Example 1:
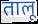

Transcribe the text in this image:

तालू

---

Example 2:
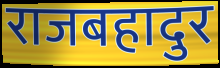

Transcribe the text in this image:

राजबहादुर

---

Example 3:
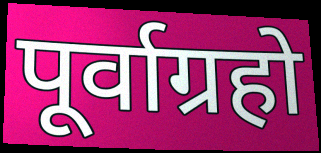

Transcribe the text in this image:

पूर्वाग्रहो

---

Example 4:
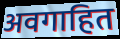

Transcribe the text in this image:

अवगाहित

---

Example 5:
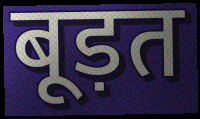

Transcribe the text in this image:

बूड़त